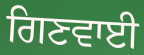
ਗਿਣਵਾਈ